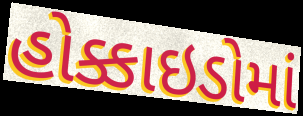
હોક્કાઇડોમાં